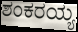
ಶಂಕರಯ್ಯ